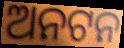
ଅନଟନ